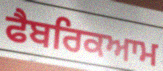
ਫੈਬਰਿਕਆਮ